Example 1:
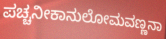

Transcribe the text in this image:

ಪಚ್ಚನೀಕಾನುಲೋಮವಣ್ಣನಾ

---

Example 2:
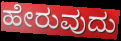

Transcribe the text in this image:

ಹೇರುವುದು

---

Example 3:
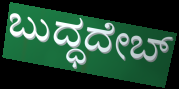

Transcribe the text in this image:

ಬುದ್ಧದೇಬ್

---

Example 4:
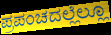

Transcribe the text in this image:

ಪ್ರಪಂಚದಲ್ಲೆಲ್ಲೂ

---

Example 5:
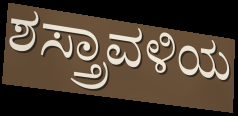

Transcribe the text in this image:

ಶಸ್ತ್ರಾವಳಿಯ